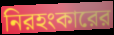
নিরহংকারের